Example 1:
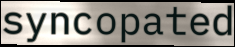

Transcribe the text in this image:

syncopated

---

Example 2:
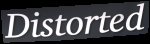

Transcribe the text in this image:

Distorted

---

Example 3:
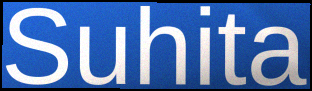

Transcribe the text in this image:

Suhita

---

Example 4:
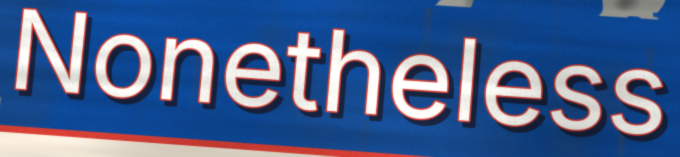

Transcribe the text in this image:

Nonetheless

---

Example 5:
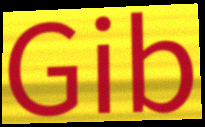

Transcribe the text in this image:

Gib